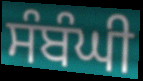
ਸੰਬੰਘੀ